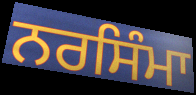
ਨਰਸਿੰਮਾ